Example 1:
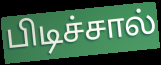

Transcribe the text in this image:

பிடிச்சால்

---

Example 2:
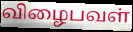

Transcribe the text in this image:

விழைபவள்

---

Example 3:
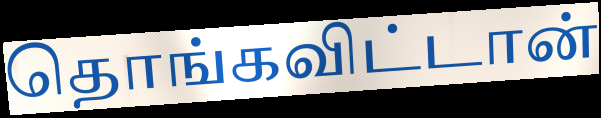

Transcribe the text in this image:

தொங்கவிட்டான்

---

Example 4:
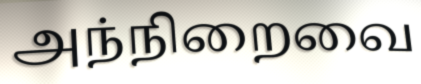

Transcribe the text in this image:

அந்நிறைவை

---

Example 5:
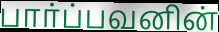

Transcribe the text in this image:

பார்ப்பவனின்